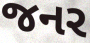
જનર